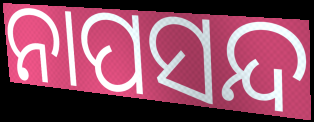
ନାପସନ୍ଦ